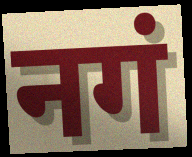
नगं